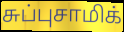
சுப்புசாமிக்